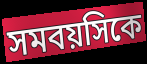
সমবয়সিকে